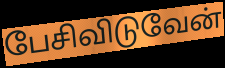
பேசிவிடுவேன்